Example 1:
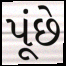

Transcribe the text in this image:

પૂંછે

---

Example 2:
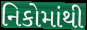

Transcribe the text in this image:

નિકોમાંથી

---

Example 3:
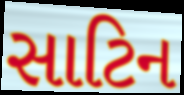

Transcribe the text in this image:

સાટિન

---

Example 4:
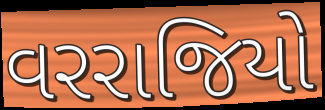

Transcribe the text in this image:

વરરાજિયો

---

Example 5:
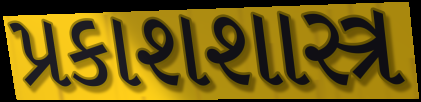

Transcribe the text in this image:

પ્રકાશશાસ્ત્ર